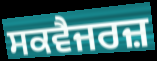
ਸਕਵੈਜਰਜ਼